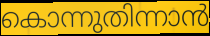
കൊന്നുതിന്നാൻ